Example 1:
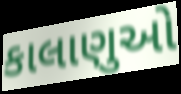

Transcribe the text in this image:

કાલાણુઓ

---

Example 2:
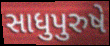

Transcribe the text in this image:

સાધુપુરુષે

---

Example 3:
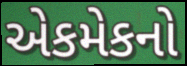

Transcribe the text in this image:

એકમેકનો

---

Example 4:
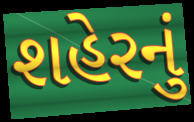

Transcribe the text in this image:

શહેરનું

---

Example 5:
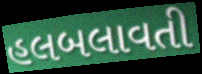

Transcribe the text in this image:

હલબલાવતી